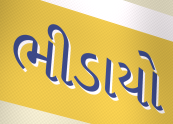
ભીડાયો